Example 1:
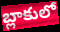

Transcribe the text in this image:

బ్లాకులో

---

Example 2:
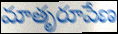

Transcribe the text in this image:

మాతృరూపేణ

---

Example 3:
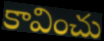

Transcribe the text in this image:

కావించు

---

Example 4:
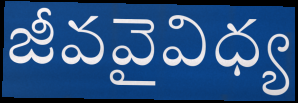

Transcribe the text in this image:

జీవవైవిధ్య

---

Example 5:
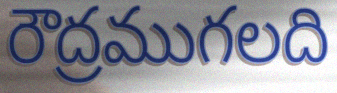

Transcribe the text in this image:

రౌద్రముగలది